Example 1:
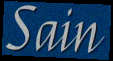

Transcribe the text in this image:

Sain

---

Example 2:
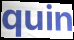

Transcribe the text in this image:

quin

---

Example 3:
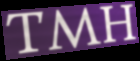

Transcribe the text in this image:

TMH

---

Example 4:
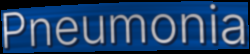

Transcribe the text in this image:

Pneumonia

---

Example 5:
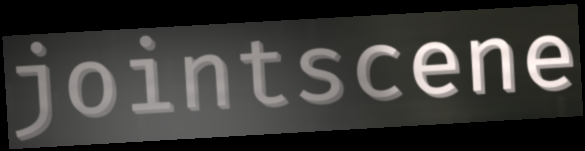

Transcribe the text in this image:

jointscene